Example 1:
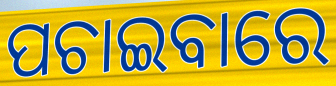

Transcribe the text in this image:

ପଚାଇବାରେ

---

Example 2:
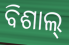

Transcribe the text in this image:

ବିଶାଲ୍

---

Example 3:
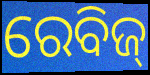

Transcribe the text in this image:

ରେବିଜ୍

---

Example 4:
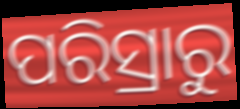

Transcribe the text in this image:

ପରିସ୍ରାରୁ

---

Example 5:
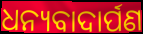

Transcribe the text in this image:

ଧନ୍ୟବାଦାର୍ପଣ